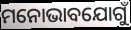
ମନୋଭାବଯୋଗୁଁ